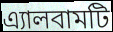
এ্যালবামটি